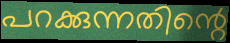
പറക്കുന്നതിന്റെ